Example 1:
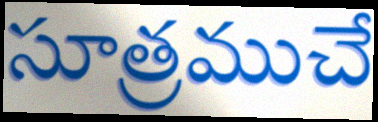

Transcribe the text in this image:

సూత్రముచే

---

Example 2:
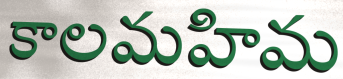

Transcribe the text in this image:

కాలమహిమ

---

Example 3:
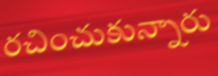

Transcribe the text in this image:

రచించుకున్నారు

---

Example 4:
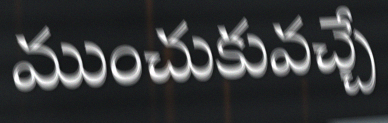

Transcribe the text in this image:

ముంచుకువచ్చే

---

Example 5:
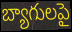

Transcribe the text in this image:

బ్యాగులపై